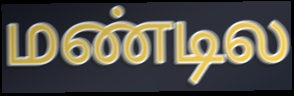
மண்டில